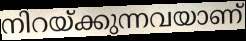
നിറയ്ക്കുന്നവയാണ്